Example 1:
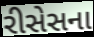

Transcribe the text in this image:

રીસેસના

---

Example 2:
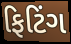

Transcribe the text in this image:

ફિટિંગ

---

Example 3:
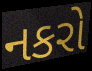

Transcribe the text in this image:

નકરો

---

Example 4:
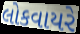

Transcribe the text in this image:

લોકવાયરે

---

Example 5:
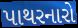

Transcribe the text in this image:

પાથરનારો